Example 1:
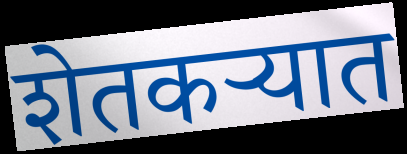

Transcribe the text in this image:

शेतकऱ्यात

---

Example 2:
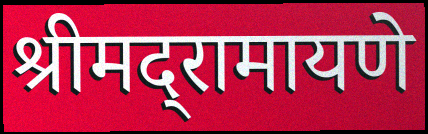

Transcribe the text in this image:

श्रीमद्‌रामायणे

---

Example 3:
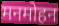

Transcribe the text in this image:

मनमोहन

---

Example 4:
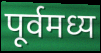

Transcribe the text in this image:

पूर्वमध्य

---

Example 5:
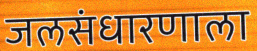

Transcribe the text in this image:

जलसंधारणाला